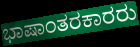
ಭಾಷಾಂತರಕಾರರು